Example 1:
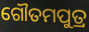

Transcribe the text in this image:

ଗୌତମପୁତ୍ର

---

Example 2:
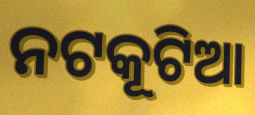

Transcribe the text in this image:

ନଟକୂଟିଆ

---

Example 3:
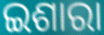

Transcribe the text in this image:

ଇଶାରା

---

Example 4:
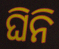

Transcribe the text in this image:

ଘିନି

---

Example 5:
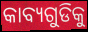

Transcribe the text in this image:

କାବ୍ୟଗୁଡିକୁ